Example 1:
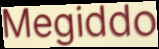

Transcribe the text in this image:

Megiddo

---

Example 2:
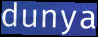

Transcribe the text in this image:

dunya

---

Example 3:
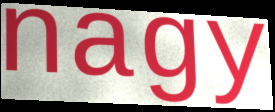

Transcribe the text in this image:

nagy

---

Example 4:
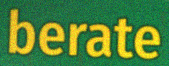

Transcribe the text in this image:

berate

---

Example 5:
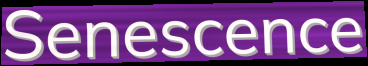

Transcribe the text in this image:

Senescence